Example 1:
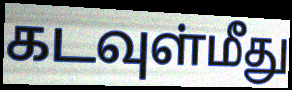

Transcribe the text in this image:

கடவுள்மீது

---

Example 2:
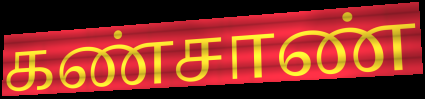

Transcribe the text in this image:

கண்சாண்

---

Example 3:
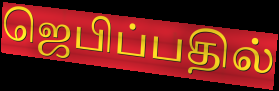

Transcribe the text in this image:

ஜெபிப்பதில்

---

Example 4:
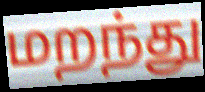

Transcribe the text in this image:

மறந்து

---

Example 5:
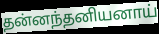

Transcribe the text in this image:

தன்னந்தனியனாய்